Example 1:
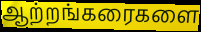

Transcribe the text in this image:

ஆற்றங்கரைகளை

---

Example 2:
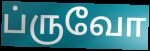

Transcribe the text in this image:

ப்ருவோ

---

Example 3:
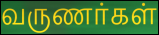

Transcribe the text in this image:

வருணர்கள்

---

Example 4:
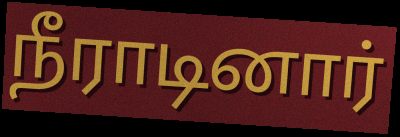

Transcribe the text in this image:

நீராடினார்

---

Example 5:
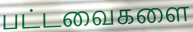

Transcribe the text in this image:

பட்டவைகளை